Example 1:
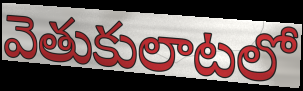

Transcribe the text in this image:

వెతుకులాటలో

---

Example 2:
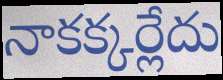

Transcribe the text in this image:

నాకక్కర్లేదు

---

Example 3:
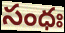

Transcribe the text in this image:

సంధః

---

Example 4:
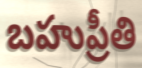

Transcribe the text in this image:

బహుప్రీతి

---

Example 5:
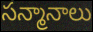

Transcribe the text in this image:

సన్మానాలు